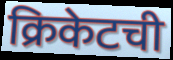
क्रिकेटची